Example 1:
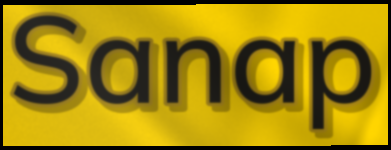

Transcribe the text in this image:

Sanap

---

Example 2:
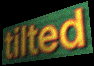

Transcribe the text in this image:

tilted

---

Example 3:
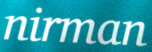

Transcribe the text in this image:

nirman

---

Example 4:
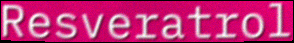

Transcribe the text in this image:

Resveratrol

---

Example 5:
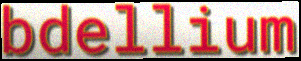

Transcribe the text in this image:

bdellium